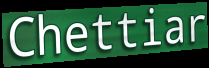
Chettiar